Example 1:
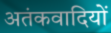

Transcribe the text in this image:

अतंकवादियों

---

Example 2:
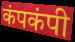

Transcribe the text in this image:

कंपकंपी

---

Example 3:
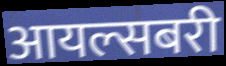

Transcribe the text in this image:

आयल्सबरी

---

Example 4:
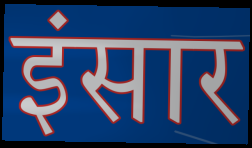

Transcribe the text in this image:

इंसार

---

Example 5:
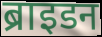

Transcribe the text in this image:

ब्राइडन